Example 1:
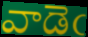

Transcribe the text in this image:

వాడెఁ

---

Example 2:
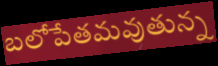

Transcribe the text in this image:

బలోపేతమవుతున్న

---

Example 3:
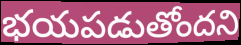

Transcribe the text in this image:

భయపడుతోందని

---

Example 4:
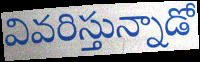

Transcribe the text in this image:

వివరిస్తున్నాడో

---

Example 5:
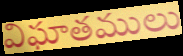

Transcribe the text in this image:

విఘాతములు